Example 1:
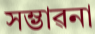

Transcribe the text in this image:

সম্ভাৱনা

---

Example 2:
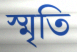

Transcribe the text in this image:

স্মৃতি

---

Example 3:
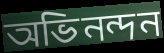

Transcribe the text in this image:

অভিনন্দন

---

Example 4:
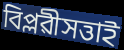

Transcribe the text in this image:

বিপ্লৱীসত্তাই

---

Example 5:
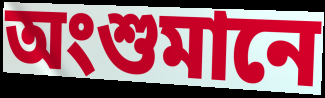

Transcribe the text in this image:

অংশুমানে